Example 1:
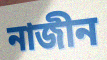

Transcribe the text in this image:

নাজীন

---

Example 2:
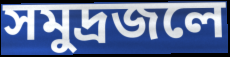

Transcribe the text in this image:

সমুদ্রজলে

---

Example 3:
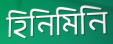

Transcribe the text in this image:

হিনিমিনি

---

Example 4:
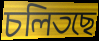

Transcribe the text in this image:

চলিতছে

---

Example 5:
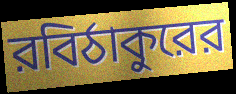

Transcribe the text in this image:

রবিঠাকুরের